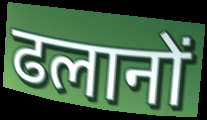
ढलानों